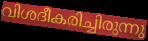
വിശദീകരിച്ചിരുന്നു